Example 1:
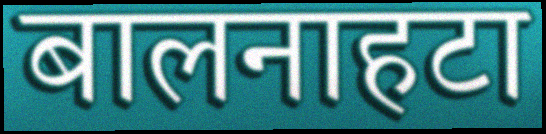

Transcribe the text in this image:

बालनाहटा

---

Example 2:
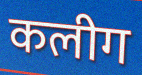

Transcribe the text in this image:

कलीग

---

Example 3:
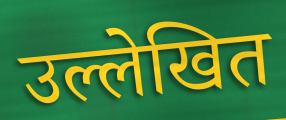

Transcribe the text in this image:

उल्लेखित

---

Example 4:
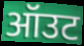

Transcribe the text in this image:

ऑउट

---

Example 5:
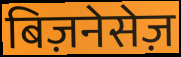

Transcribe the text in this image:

बिज़नेसेज़